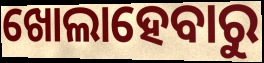
ଖୋଲାହେବାରୁ